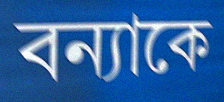
বন্যাকে